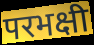
परभक्षी